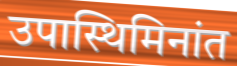
उपास्थिमिनांत